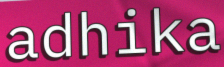
adhika